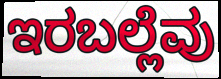
ಇರಬಲ್ಲೆವು